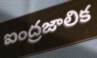
ఐంద్రజాలిక